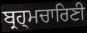
ਬ੍ਰਹ੍ਮਚਾਰਿਣੀ